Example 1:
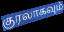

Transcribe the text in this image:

குரலாகவும்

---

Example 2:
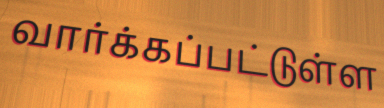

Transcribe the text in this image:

வார்க்கப்பட்டுள்ள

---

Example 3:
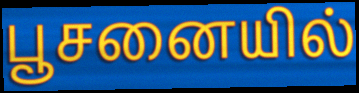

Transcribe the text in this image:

பூசனையில்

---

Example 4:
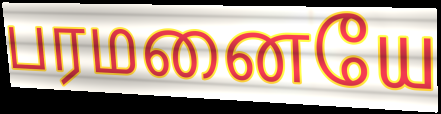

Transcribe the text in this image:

பரமனையே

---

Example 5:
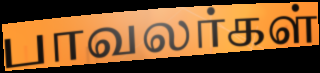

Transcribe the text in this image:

பாவலர்கள்